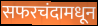
सफरचंदामधून